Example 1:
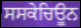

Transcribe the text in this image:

ਸਸਕੇਚਿਊਨ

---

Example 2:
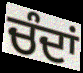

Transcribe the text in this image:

ਚੰਦਾਂ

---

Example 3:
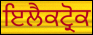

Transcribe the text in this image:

ਇਲੈਕਟ੍ਰੋਕ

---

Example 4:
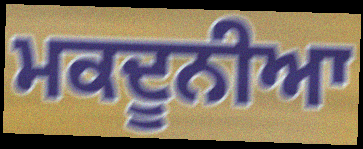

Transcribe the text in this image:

ਮਕਦੂਨੀਆ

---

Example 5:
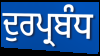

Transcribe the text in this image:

ਦੁਰਪ੍ਰਬੰਧ